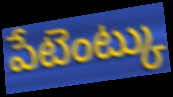
పేటెంట్కు